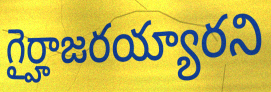
గైర్హాజరయ్యారని